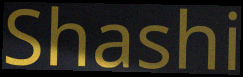
Shashi